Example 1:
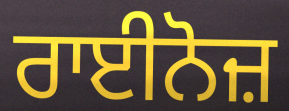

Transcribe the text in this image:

ਰਾਈਨੋਜ਼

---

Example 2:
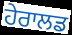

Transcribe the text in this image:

ਹੇਰਾਲਡ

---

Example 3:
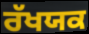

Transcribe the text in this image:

ਰੱਖਯਕ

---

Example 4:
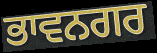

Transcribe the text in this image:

ਭਾਵਨਗਰ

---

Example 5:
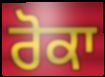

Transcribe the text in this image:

ਰੋਕਾ